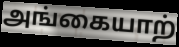
அங்கையாற்